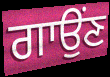
ਗਾਉਂਣ